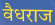
वैधराज